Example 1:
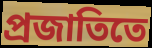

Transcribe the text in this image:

প্রজাতিতে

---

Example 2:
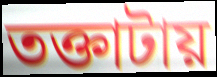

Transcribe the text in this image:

তক্তাটায়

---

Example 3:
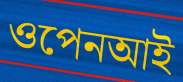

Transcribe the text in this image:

ওপেনআই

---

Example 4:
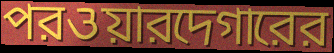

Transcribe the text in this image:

পরওয়ারদেগারের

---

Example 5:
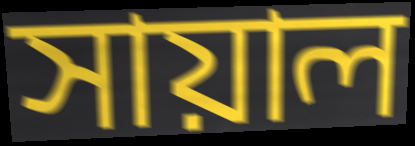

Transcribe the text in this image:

সায়াল